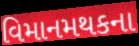
વિમાનમથકના